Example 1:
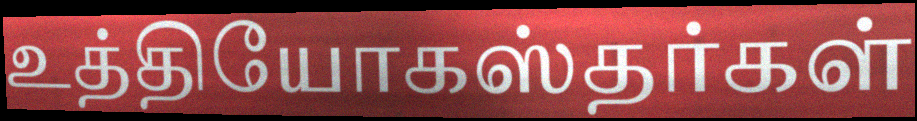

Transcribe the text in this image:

உத்தியோகஸ்தர்கள்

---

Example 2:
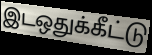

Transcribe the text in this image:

இடஒதுக்கீட்டு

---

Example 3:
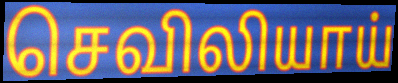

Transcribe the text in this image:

செவிலியாய்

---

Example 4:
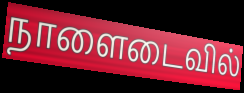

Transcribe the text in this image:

நாளைடைவில்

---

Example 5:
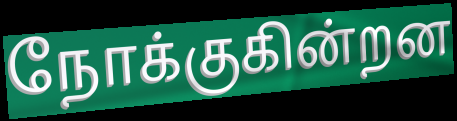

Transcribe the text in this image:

நோக்குகின்றன